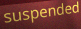
suspended